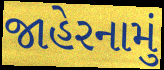
જાહેરનામું